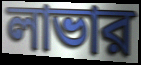
লাভার